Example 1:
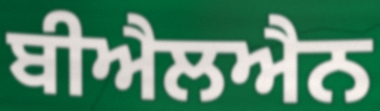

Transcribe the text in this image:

ਬੀਐਲਐਨ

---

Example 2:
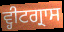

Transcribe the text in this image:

ਵ੍ਹੀਟਗ੍ਰਾਸ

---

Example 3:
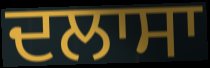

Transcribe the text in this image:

ਦਲਾਸਾ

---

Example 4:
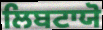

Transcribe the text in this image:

ਲਿਬਟਾਯੋ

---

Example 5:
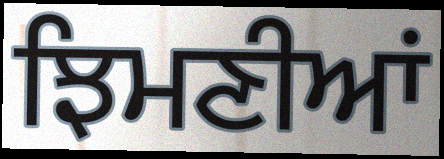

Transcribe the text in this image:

ਝਿਮਣੀਆਂ